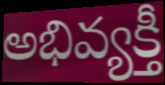
అభివ్యక్తీ